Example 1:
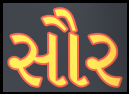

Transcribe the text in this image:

સૌર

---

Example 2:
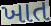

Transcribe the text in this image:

ખાત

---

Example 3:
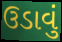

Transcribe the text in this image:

ઉડાવું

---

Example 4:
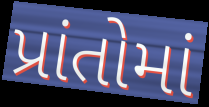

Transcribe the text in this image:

પ્રાંતોમાં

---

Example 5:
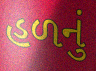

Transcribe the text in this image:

હળનું